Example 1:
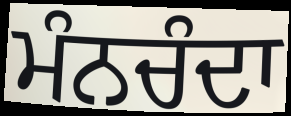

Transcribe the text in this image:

ਮੰਨਚੰਦਾ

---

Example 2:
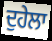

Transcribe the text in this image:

ਦੁਹੇਲਾ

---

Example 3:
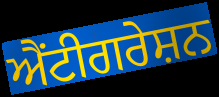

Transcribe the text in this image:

ਐਂਟੀਗਰੇਸ਼ਨ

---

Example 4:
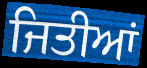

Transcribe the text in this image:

ਜਿਤੀਆਂ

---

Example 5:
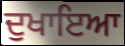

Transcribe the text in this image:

ਦੁਖਾਇਆ